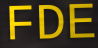
FDE